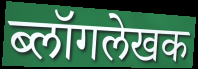
ब्लॉगलेखक